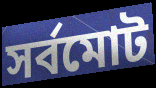
সর্বমোট